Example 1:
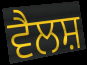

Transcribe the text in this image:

ਵੈਲਸ਼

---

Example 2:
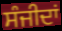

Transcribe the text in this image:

ਸੰਜੀਦਾਂ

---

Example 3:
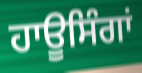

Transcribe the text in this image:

ਹਾਊਸਿੰਗਾਂ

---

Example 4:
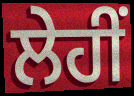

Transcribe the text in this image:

ਲੇਹੀਂ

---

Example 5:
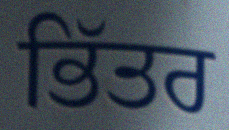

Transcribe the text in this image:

ਭਿੱਤਰ